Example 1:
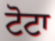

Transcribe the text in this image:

ਟੋਟਾ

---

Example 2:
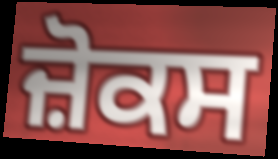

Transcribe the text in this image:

ਜ਼ੋਕਸ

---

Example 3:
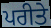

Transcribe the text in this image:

ਪਰੀਤੇ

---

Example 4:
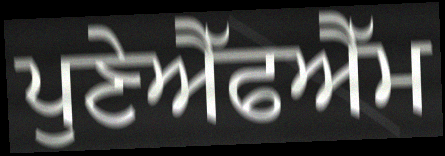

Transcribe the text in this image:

ਪੁਣੇਐੱਫਐੱਮ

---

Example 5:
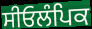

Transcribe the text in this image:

ਸੀਓਲੰਪਿਕ